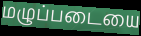
மழுப்படையை